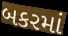
બકરમાં